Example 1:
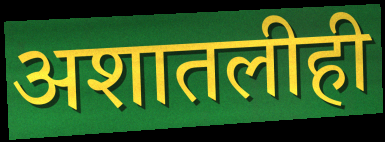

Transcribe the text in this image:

अशातलीही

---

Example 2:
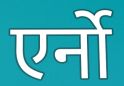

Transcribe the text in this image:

एर्नो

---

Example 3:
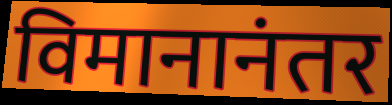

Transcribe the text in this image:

विमानानंतर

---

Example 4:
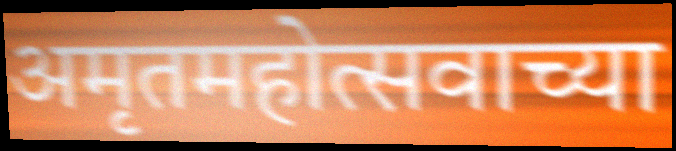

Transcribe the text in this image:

अमृतमहोत्सवाच्या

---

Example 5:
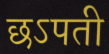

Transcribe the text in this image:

छऽपती